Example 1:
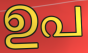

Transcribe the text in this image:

ഉപ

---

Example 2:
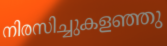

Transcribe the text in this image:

നിരസിച്ചുകളഞ്ഞു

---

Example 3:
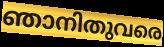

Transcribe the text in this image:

ഞാനിതുവരെ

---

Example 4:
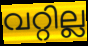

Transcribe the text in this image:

വറ്റില്ല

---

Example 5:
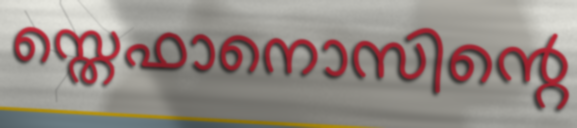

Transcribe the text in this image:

സ്തെഫാനൊസിന്റെ